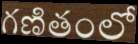
గణితంలో